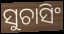
ସୁଚାସିଂ